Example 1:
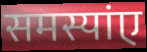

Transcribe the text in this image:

समस्यांए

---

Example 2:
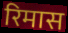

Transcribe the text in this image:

रिमास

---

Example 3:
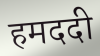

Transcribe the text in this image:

हमददी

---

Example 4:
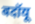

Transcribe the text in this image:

बदॉयू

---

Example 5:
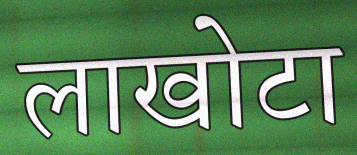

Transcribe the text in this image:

लाखोटा